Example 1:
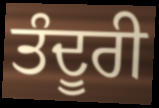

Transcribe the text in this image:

ਤੰਦੂਰੀ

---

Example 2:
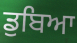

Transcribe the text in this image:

ਡੁਬਿਆ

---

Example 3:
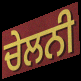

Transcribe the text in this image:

ਚੇਲਨੀ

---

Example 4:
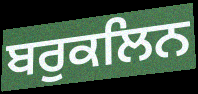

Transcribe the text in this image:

ਬਰੁਕਲਿਨ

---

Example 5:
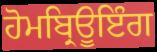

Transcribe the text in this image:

ਹੋਮਬ੍ਰਿਊਇੰਗ